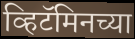
व्हिटॅमिनच्या